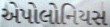
એપોલોનિયસ